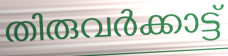
തിരുവർക്കാട്ട്